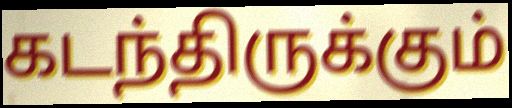
கடந்திருக்கும்